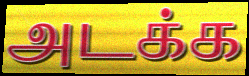
அடக்க